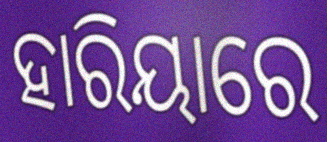
ହାରିୟାରେ